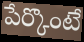
పేర్కొంటే